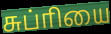
சுப்ரியை